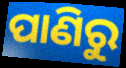
ପାଣିରୁ